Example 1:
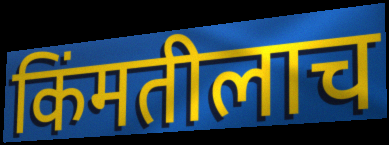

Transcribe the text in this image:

किंमतीलाच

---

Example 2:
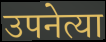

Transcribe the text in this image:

उपनेत्या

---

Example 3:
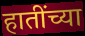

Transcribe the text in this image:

हातींच्या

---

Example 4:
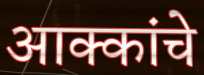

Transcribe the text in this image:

आक्कांचे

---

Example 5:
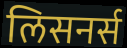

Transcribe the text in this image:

लिसनर्स